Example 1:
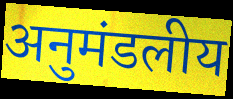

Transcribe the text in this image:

अनुमंडलीय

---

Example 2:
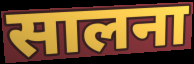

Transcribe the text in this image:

सालना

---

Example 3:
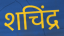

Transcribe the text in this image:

शचिंद्र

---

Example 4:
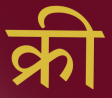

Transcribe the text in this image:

क्री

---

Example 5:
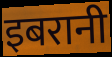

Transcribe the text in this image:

इबरानी